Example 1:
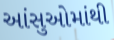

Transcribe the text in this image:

આંસુઓમાંથી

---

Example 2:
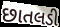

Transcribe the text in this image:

છાતલડી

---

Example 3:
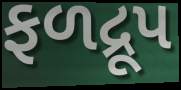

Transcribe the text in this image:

ફળદ્રૂપ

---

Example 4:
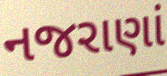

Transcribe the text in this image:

નજરાણાં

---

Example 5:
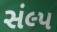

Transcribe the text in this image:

સંલ્પ